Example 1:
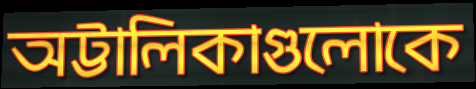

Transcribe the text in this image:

অট্টালিকাগুলোকে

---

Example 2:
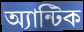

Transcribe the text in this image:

অ্যান্টিক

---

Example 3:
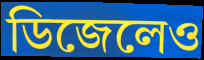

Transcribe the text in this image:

ডিজেলেও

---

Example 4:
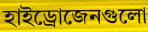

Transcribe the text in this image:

হাইড্রোজেনগুলো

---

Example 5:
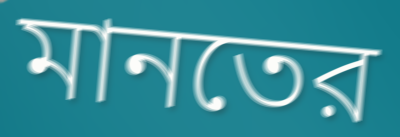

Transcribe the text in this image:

মানতের